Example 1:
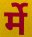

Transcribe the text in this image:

र्मे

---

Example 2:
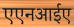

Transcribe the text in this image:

एएनआईए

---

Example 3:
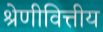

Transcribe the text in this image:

श्रेणीवित्तीय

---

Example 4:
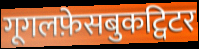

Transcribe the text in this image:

गूगलफ़ेसबुकट्विटर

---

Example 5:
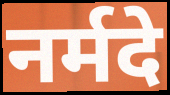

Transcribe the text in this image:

नर्मदे